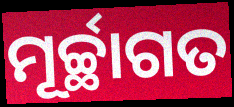
ମୂର୍ଚ୍ଛାଗତ